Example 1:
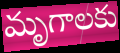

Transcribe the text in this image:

మృగాలకు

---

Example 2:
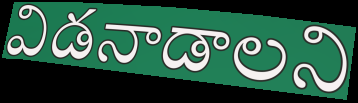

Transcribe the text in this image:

విడనాడాలని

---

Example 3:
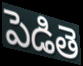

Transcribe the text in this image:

పెడితె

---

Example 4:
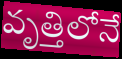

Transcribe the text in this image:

వృత్తిలోనే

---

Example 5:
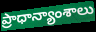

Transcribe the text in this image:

ప్రాధాన్యాంశాలు